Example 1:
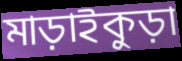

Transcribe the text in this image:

মাড়াইকুড়া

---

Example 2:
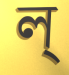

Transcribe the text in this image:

ল্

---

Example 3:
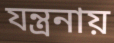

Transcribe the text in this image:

যন্ত্রনায়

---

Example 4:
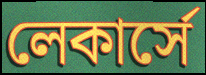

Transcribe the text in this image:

লেকার্সে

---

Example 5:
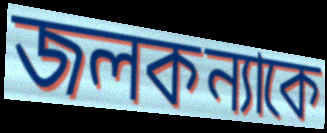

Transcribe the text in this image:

জলকন্যাকে